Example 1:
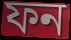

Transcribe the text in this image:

ফন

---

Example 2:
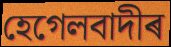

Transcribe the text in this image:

হেগেলবাদীৰ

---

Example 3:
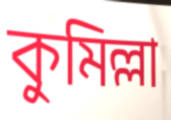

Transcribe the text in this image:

কুমিল্লা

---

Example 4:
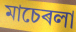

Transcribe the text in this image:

মাচেৰলা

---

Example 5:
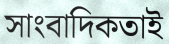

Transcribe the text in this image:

সাংবাদিকতাই